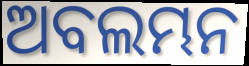
ଅବଲମ୍ଭନ